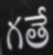
గతే